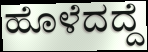
ಹೊಳೆದದ್ದೆ